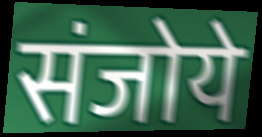
संजोये